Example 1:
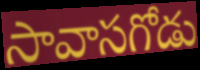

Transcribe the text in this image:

సావాసగోడు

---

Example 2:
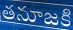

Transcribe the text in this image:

తనూజకి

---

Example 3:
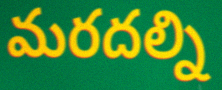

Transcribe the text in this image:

మరదల్ని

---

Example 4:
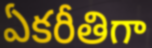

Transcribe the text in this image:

ఏకరీతిగా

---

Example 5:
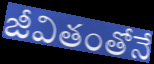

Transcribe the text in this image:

జీవితంతోనే